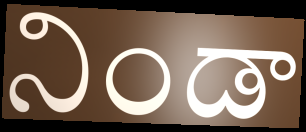
నిండా